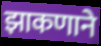
झाकणाने